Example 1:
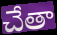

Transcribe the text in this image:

చేతా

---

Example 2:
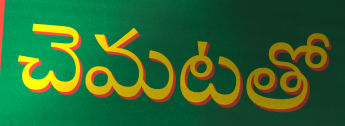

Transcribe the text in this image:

చెమటతో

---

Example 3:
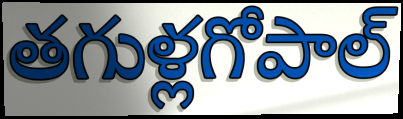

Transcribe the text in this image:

తగుళ్లగోపాల్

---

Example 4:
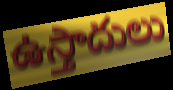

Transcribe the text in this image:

ఉస్తాదులు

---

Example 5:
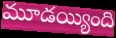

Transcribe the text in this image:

మూడయ్యింది